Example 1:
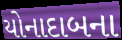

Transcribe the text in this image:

યોનાદાબના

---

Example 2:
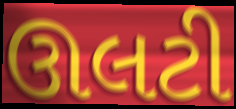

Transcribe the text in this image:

ઊલટી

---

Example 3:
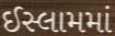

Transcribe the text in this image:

ઈસ્લામમાં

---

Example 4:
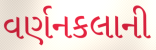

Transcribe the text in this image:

વર્ણનકલાની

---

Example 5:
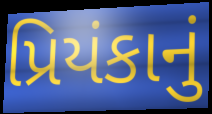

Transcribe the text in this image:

પ્રિયંકાનું